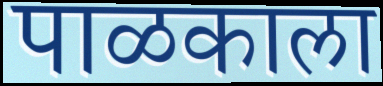
पाळकाला